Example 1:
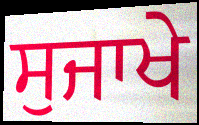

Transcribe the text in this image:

ਸੁਜਾਖੇ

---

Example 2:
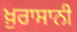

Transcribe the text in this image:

ਖ਼ੁਰਾਸਾਨੀ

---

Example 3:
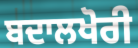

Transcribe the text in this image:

ਬਦਾਲਖੋਰੀ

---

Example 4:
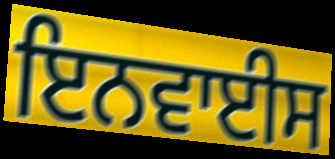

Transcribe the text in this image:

ਇਨਵਾਈਸ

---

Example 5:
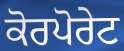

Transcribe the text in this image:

ਕੋਰਪੋਰੇਟ